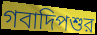
গবাদিপশুর